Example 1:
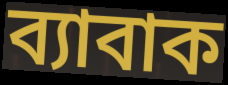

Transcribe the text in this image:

ব্যাবাক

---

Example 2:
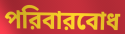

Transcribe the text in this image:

পরিবারবোধ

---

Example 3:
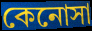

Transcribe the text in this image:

কেনোসা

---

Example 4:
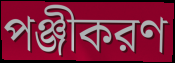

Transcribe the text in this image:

পঞ্জীকরণ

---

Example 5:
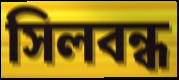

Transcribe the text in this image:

সিলবন্ধ